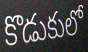
కొడుకులో